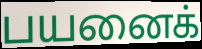
பயனைக்